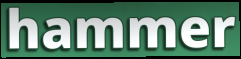
hammer